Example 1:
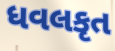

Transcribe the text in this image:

ધવલકૃત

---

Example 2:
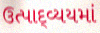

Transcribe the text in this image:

ઉત્પાદ્વ્યયમાં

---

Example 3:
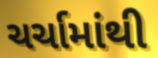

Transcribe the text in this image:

ચર્ચામાંથી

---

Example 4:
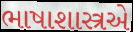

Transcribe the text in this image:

ભાષાશાસ્ત્રએ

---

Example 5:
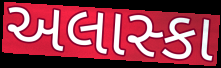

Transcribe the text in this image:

અલાસ્કા